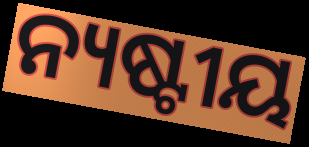
ନ୍ୟଷ୍ଟୀୟ